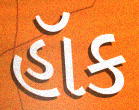
હૉક